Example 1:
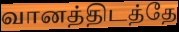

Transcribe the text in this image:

வானத்திடத்தே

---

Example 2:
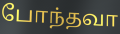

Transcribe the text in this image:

போந்தவா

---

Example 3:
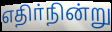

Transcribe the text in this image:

எதிர்நின்று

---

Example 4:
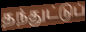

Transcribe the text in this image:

தந்துட்டுப்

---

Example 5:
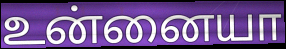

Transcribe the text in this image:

உன்னையா